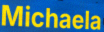
Michaela